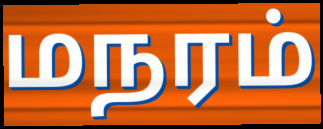
மநரம்